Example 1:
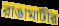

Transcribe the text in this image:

রাঙামাটীর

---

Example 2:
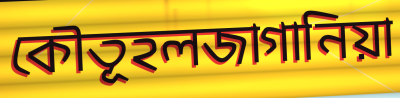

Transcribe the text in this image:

কৌতূহলজাগানিয়া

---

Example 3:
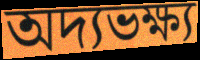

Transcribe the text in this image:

অদ্যভক্ষ্য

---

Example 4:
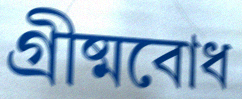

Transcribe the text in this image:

গ্রীষ্মবোধ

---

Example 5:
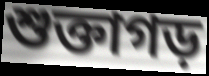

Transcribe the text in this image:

শুক্তাগড়